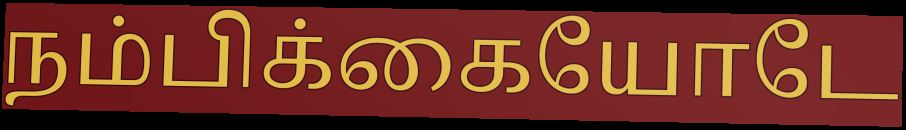
நம்பிக்கையோடே